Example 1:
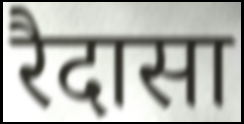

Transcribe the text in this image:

रैदासा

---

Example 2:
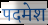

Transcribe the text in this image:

पदमेश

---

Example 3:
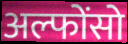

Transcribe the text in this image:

अल्फोंसो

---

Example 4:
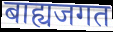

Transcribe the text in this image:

बाह्यजगत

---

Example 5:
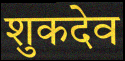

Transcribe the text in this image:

शुकदेव